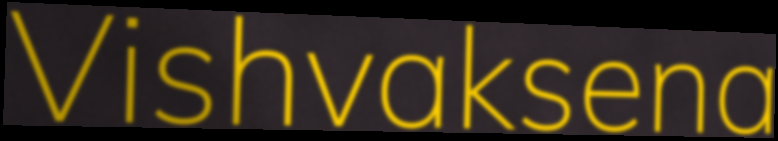
Vishvaksena